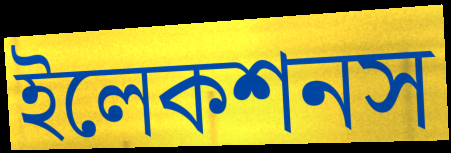
ইলেকশনস